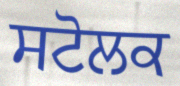
ਸਟੋਲਕ